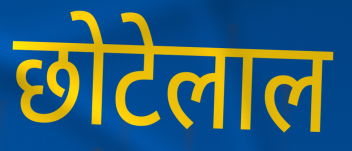
छोटेलाल